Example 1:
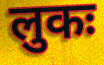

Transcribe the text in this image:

लुकः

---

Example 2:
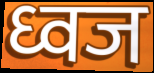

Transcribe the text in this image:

ध्वज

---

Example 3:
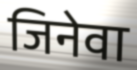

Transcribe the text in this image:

जिनेवा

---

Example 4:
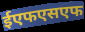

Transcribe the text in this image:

ईएफएसएफ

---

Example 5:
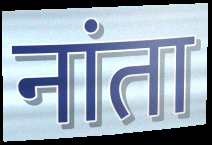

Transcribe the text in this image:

नांता